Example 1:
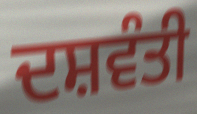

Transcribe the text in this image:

ਦਸ਼ਵੰਤੀ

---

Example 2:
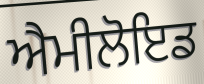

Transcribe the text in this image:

ਐਮੀਲੋਇਡ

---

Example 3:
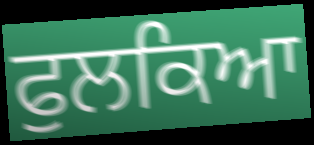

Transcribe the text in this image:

ਫੁਲਕਿਆ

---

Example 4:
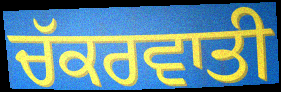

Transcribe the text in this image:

ਚੱਕਰਵਾਤੀ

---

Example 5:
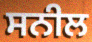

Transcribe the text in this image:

ਸਨੀਲ